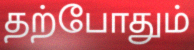
தற்போதும்